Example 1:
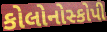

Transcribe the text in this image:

કોલોનોસ્કોપી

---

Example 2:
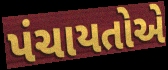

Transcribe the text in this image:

પંચાયતોએ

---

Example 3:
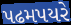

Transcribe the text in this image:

પઢમપયરે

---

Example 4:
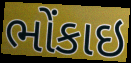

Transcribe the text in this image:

ભોંકાઇ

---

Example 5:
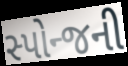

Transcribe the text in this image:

સ્પોન્જની